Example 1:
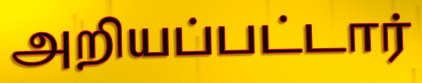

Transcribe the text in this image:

அறியப்பட்டார்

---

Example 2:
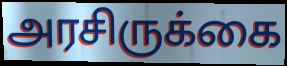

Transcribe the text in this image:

அரசிருக்கை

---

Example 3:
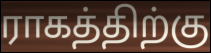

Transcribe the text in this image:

ராகத்திற்கு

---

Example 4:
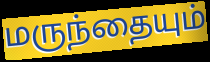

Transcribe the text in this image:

மருந்தையும்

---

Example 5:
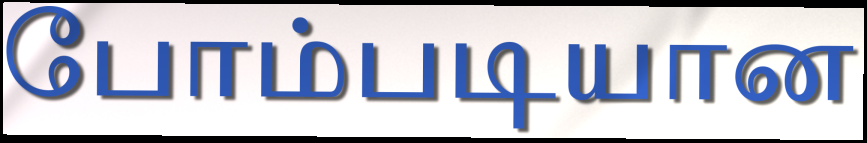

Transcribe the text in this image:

போம்படியான